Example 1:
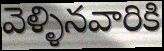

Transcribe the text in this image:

వెళ్ళినవారికి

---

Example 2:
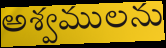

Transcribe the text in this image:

అశ్వములను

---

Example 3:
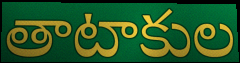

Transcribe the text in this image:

తాటాకుల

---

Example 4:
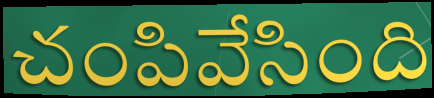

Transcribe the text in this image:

చంపివేసింది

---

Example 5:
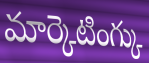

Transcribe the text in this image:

మార్కెటింగ్కు